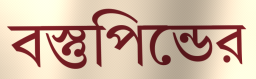
বস্তুপিন্ডের